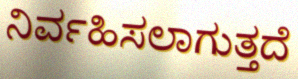
ನಿರ್ವಹಿಸಲಾಗುತ್ತದೆ